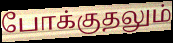
போக்குதலும்